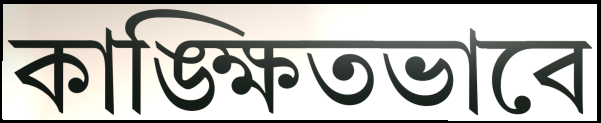
কাঙ্ক্ষিতভাবে